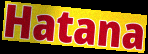
Hatana